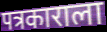
पत्रकाराला